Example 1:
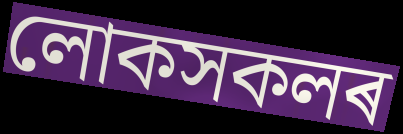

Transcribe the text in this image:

লোকসকলৰ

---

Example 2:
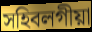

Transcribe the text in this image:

সহিবলগীয়া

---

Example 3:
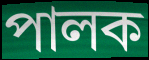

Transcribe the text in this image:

পালক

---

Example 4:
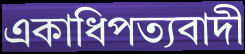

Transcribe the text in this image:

একাধিপত্যবাদী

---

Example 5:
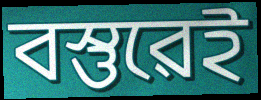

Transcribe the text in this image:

বস্তুৱেই